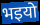
भइयो